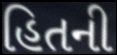
હિતની